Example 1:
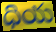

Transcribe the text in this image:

ధియ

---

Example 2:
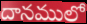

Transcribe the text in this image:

దానములో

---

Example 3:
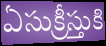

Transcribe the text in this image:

ఏసుక్రీస్తుకి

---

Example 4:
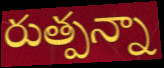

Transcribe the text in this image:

రుత్పన్నా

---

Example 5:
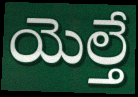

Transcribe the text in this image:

యెల్తే